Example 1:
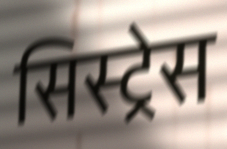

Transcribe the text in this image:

सिस्ट्रेस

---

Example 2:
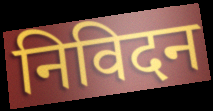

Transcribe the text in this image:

निविदन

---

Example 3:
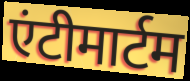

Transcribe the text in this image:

एंटीमार्टम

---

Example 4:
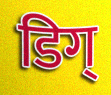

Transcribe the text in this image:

डिग्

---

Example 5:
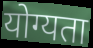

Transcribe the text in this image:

योग्यता